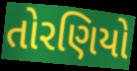
તોરણિયો